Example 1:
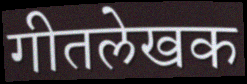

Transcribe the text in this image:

गीतलेखक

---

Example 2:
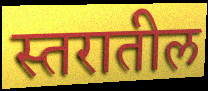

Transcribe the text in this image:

स्तरातील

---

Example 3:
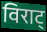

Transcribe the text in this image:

विराट्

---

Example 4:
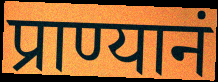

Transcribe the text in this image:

प्राण्यानं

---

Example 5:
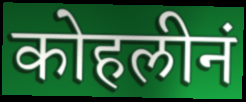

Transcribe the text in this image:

कोहलीनं